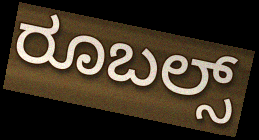
ರೂಬಲ್ಸ್